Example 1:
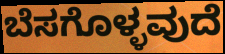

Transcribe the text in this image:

ಬೆಸಗೊಳ್ಳವುದೆ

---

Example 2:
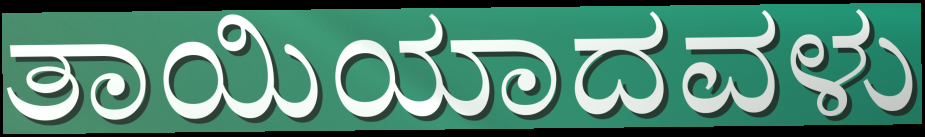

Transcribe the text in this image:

ತಾಯಿಯಾದವಳು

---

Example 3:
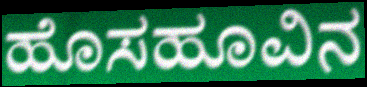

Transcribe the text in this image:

ಹೊಸಹೂವಿನ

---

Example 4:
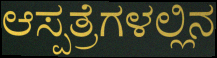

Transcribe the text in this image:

ಆಸ್ಪತ್ರೆಗಳಲ್ಲಿನ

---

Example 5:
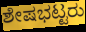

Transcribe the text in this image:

ಶೇಷಭಟ್ಟರು